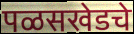
पळसखेडचे